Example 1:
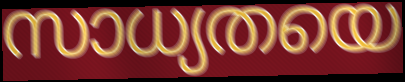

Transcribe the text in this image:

സാധ്യതയെ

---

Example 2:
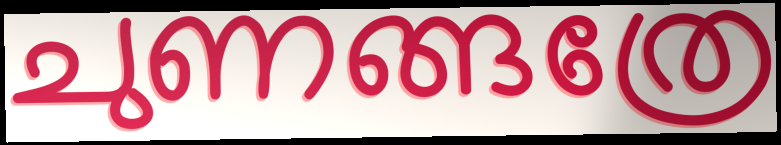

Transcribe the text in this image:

ചുണങ്ങത്രേ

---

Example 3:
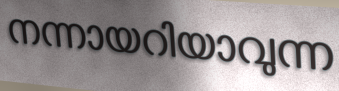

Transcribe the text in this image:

നന്നായറിയാവുന്ന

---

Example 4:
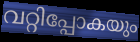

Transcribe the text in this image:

വറ്റിപ്പോകയും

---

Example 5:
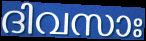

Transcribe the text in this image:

ദിവസാഃ